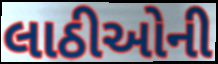
લાઠીઓની